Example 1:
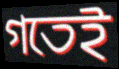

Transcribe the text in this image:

গতেই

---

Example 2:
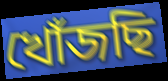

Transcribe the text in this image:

খোঁজছি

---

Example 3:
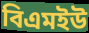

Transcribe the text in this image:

বিএমইউ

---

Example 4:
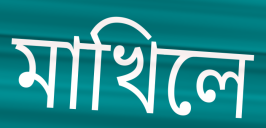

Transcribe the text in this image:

মাখিলে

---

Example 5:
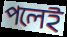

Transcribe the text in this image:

পলেই